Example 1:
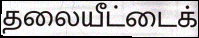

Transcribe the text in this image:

தலையீட்டைக்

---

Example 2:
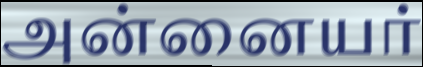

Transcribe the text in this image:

அன்னையர்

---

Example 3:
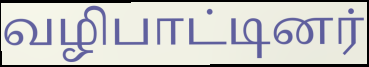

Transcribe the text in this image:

வழிபாட்டினர்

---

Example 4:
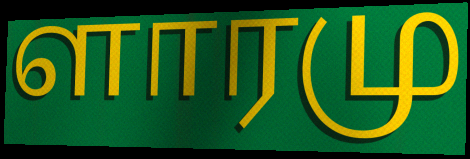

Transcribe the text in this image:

ளாரமு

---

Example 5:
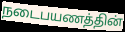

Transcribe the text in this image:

நடைபயணத்தின்